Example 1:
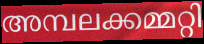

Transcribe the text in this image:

അമ്പലക്കമ്മറ്റി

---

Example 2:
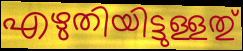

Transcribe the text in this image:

എഴുതിയിട്ടുള്ളതു്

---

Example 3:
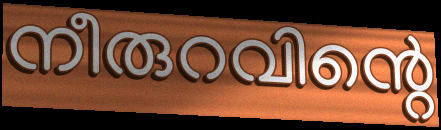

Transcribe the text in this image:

നീരുറവിന്റെ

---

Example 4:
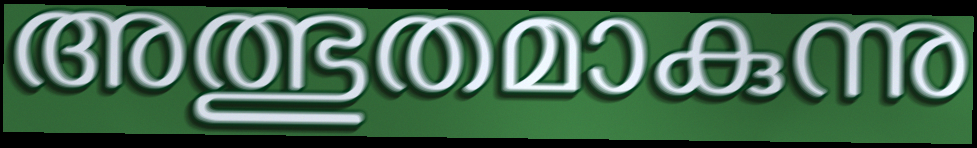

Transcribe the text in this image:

അത്ഭുതമാകുന്നു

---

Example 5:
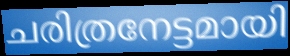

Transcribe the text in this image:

ചരിത്രനേട്ടമായി